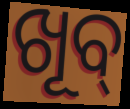
ଖୂବ୍